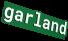
garland